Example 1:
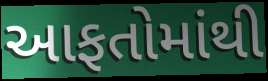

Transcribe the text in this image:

આફતોમાંથી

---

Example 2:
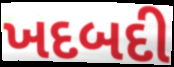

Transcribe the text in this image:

ખદબદી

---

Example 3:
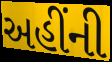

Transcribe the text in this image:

અહીંની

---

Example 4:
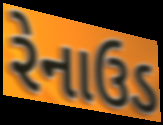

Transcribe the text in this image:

રેનાઉડ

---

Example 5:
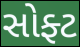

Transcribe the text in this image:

સોફ્ટ